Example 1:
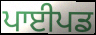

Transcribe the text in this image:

ਪਾਈਪਡ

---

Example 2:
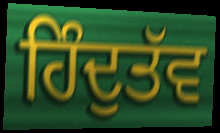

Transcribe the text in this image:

ਹਿੰਦੁਤੱਵ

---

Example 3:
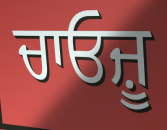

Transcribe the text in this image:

ਚਾਓਜ਼ੂ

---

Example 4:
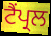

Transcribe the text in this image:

ਟੈਂਪ੍ਰਲ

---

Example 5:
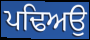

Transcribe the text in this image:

ਪਢਿਅਉ